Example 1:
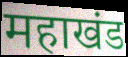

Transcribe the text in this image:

महाखंड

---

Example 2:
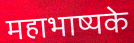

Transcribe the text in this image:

महाभाष्यके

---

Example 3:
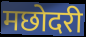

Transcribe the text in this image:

मछोदरी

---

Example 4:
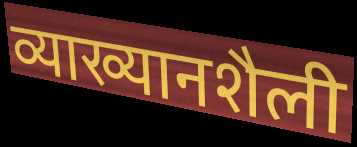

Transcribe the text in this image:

व्याख्यानशैली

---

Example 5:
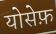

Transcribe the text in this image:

योसेफ़